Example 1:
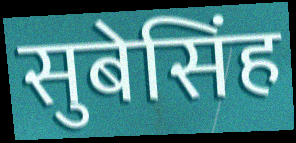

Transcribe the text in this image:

सुबेसिंह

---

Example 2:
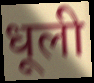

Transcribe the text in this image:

धूली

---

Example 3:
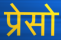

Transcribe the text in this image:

प्रेसो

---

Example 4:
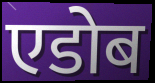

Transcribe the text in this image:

एडोब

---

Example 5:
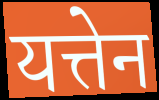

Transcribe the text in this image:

यत्तेन